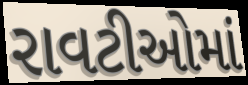
રાવટીઓમાં